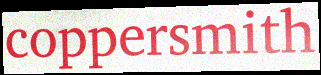
coppersmith